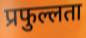
प्रफुल्लता